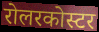
रोलरकोस्टर